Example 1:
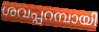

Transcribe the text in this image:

ശവപ്പറമ്പായി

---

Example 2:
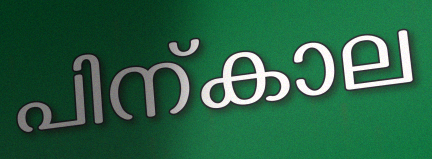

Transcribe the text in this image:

പിന്കാല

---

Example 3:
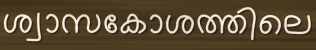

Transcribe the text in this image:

ശ്വാസകോശത്തിലെ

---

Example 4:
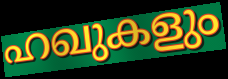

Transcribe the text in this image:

ഹഖുകളും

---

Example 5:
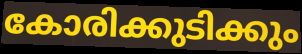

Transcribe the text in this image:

കോരിക്കുടിക്കും